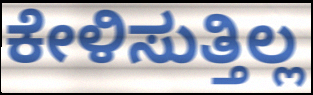
ಕೇಳಿಸುತ್ತಿಲ್ಲ